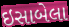
ઇસાબેલા